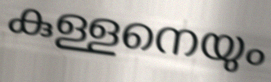
കുള്ളനെയും